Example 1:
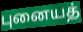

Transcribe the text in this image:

புனையத்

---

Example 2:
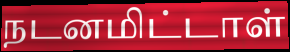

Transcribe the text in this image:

நடனமிட்டாள்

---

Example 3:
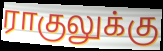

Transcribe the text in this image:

ராகுலுக்கு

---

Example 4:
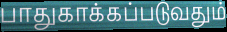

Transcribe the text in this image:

பாதுகாக்கப்படுவதும்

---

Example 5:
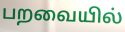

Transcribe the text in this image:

பறவையில்